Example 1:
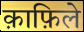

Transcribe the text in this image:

क़ाफ़िले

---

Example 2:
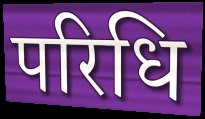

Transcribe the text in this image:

परिधि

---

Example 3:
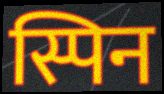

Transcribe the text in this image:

स्पिन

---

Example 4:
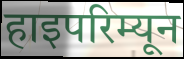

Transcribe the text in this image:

हाइपरिम्यून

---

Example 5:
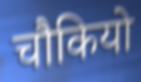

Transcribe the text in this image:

चौकियो